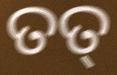
ତତ୍